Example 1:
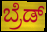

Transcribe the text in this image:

ಬ್ರೆಡ್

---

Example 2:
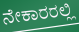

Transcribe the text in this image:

ನೇಕಾರರಲ್ಲಿ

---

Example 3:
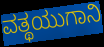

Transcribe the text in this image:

ವತ್ಥಯುಗಾನಿ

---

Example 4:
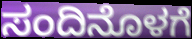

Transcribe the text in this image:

ಸಂದಿನೊಳಗೆ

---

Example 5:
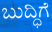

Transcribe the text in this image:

ಬುದ್ಧಿಗೆ